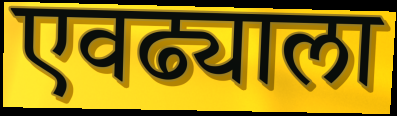
एवढ्याला